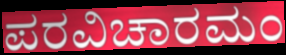
ಪರವಿಚಾರಮಂ